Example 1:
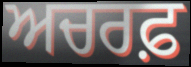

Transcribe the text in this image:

ਅਚਰਫ਼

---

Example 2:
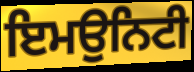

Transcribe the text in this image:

ਇਮਉਨਿਟੀ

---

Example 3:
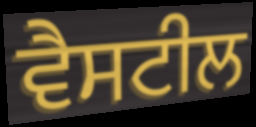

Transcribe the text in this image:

ਵੈਸਟੀਲ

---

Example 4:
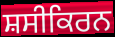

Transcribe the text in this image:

ਸ਼ਸੀਕਿਰਨ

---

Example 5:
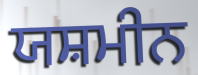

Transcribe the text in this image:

ਯਸ਼ਮੀਨ